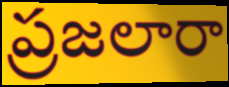
ప్రజలారా